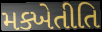
મક્ખેતીતિ